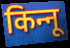
किन्नू